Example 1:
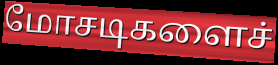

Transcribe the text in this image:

மோசடிகளைச்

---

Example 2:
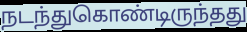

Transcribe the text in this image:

நடந்துகொண்டிருந்தது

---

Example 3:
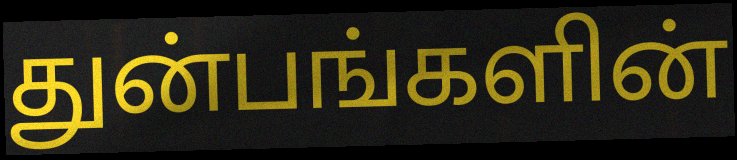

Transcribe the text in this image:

துன்பங்களின்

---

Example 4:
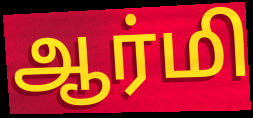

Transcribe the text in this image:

ஆர்மி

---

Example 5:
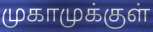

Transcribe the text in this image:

முகாமுக்குள்